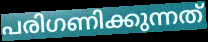
പരിഗണിക്കുന്നത്